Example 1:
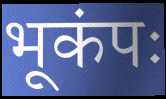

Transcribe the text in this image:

भूकंपः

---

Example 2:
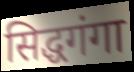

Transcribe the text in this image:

सिद्धगंगा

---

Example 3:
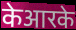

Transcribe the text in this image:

केआरके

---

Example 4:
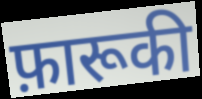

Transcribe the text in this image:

फ़ारूकी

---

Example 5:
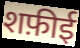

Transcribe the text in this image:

शफ़ीई